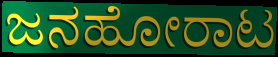
ಜನಹೋರಾಟ